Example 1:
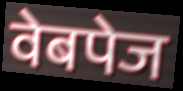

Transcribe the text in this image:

वेबपेज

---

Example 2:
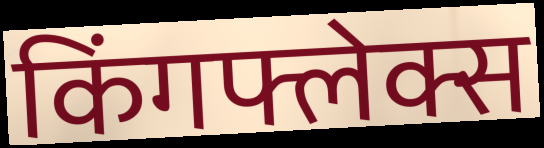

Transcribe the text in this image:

किंगफ्लेक्स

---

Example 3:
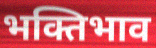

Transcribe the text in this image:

भक्तिभाव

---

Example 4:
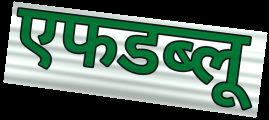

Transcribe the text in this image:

एफडब्लू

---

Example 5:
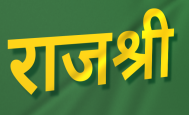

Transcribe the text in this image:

राजश्री